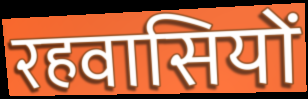
रहवासियों